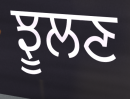
ਝੂਲਣ